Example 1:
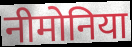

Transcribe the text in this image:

नीमोनिया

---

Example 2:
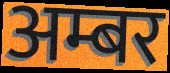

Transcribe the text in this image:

अम्‍बर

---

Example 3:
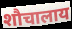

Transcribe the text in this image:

शौचालाय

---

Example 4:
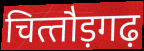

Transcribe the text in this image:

चित्‍तौड़गढ़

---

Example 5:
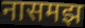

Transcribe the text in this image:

नासमझ